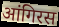
आंगिरस